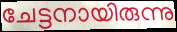
ചേട്ടനായിരുന്നു